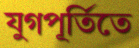
যুগপূর্তিতে